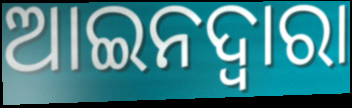
ଆଇନଦ୍ଵାରା